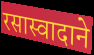
रसास्वादाने